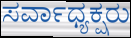
ಸರ್ವಾಧ್ಯಕ್ಷರು